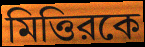
মিত্তিরকে